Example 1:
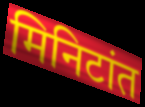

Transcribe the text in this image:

मिनिटांत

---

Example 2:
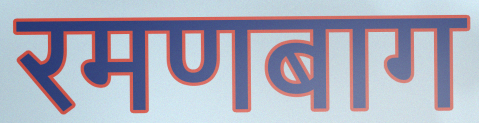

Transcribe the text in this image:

रमणबाग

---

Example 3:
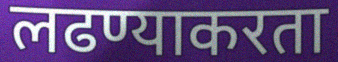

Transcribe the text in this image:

लढण्याकरता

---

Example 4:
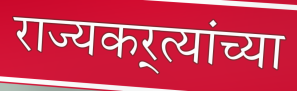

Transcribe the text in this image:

राज्यकर्त्यांच्या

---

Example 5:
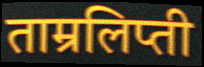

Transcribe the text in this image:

ताम्रलिप्ती